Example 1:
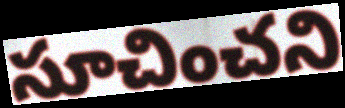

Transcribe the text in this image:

సూచించని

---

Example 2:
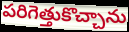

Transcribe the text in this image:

పరిగెత్తుకొచ్చాను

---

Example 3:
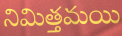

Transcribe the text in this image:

నిమిత్తమయి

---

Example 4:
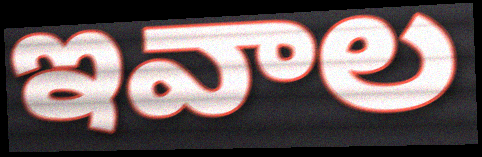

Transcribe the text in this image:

ఇవాల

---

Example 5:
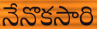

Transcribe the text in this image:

నేనొకసారి